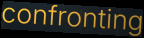
confronting